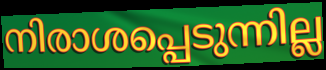
നിരാശപ്പെടുന്നില്ല